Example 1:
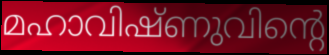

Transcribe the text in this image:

മഹാവിഷ്ണുവിന്റെ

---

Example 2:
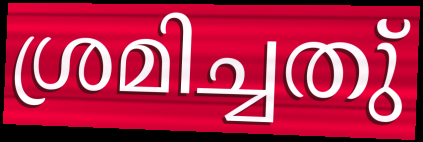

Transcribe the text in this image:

ശ്രമിച്ചതു്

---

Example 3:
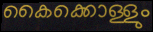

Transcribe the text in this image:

കൈക്കൊള്ളും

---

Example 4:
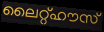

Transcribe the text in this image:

ലൈറ്റ്ഹൗസ്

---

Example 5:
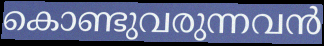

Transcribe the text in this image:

കൊണ്ടുവരുന്നവൻ